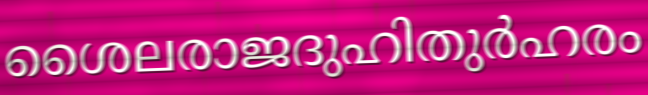
ശൈലരാജദുഹിതുർഹരം